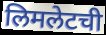
लिमलेटची